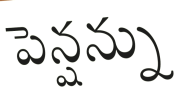
పెన్షన్ను